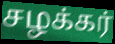
சழக்கர்